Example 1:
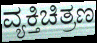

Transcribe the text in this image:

ವ್ಯಕ್ತಿಚಿತ್ರಣ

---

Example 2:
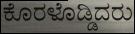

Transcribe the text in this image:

ಕೊರಳೊಡ್ಡಿದರು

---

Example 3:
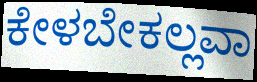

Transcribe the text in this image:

ಕೇಳಬೇಕಲ್ಲವಾ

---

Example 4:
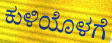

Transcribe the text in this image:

ಕುಳಿಯೊಳಗೆ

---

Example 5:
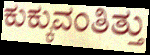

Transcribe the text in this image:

ಕುಕ್ಕುವಂತಿತ್ತು